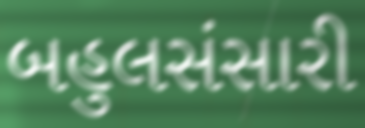
બહુલસંસારી